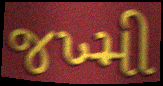
જખ્મી